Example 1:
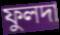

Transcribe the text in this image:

ফুলদা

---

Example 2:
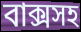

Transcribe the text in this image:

বাক্সসহ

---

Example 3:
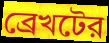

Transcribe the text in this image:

ব্রেখটের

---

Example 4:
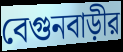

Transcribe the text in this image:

বেগুনবাড়ীর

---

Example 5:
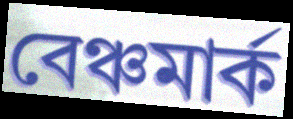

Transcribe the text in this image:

বেঞ্চমার্ক